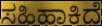
ಸಹಿಹಾಕಿದೆ